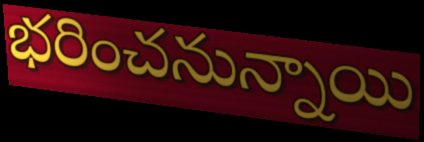
భరించనున్నాయి